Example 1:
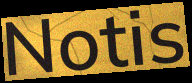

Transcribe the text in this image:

Notis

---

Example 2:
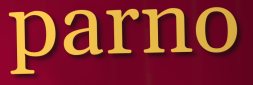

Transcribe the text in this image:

parno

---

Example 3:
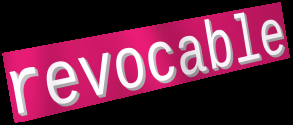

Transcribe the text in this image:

revocable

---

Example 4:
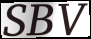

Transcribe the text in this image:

SBV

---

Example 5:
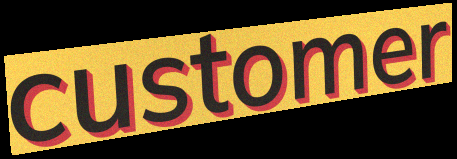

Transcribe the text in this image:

customer